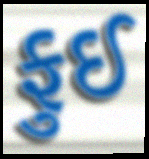
ફુઈ